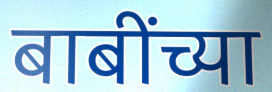
बाबींच्या